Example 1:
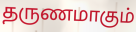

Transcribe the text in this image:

தருணமாகும்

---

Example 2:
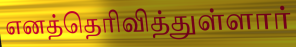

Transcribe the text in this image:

எனத்தெரிவித்துள்ளார்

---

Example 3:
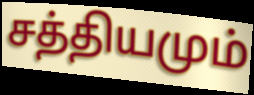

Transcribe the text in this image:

சத்தியமும்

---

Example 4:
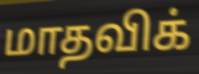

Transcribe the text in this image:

மாதவிக்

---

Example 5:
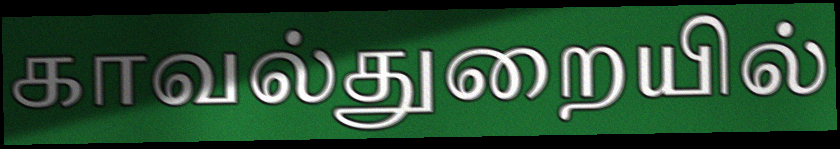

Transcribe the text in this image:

காவல்துறையில்